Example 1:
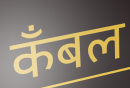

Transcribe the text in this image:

कँबल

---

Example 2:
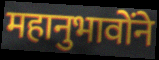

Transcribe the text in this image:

महानुभावोंने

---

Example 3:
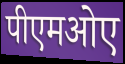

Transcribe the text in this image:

पीएमओए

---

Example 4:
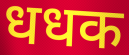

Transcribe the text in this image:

धधक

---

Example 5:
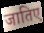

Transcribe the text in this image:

जातिए